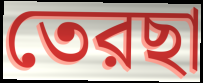
তেরছা